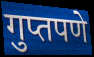
गुप्तपणे